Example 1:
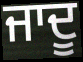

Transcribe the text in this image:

ਜਾਦੂ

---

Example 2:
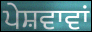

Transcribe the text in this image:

ਪੇਸ਼ਵਾਵਾਂ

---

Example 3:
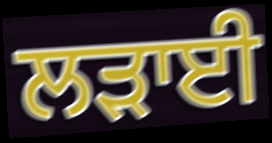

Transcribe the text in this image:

ਲੜਾਈ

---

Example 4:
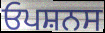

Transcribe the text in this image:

ਓਪਸ਼ਨਸ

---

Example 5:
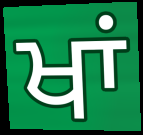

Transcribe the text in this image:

ਖਾਂ